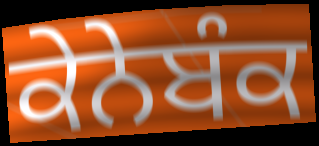
ਕੇਨੇਬੰਕ